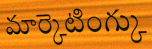
మార్కెటింగ్కు